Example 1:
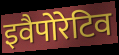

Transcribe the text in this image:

इवैपोरेटिव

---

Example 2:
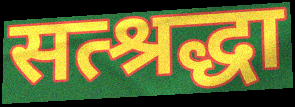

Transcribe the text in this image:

सत्श्रद्धा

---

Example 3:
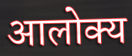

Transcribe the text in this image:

आलोक्य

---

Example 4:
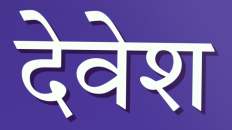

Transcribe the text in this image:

देवेश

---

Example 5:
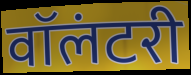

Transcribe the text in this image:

वॉलंटरी